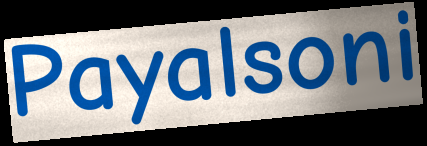
Payalsoni